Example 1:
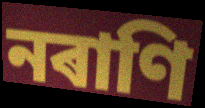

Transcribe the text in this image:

নৰাণি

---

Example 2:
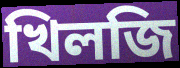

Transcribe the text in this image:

খিলজি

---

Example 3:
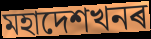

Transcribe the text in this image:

মহাদেশখনৰ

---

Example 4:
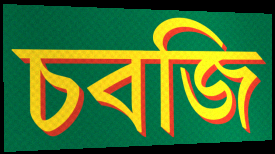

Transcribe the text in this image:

চবজি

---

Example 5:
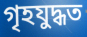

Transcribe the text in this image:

গৃহযুদ্ধত